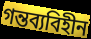
গন্তব্যবিহীন